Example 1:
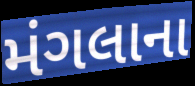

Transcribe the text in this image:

મંગલાના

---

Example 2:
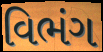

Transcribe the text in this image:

વિભંગ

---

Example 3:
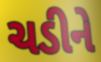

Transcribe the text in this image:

ચડીને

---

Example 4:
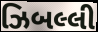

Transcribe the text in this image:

ઝિબલ્લી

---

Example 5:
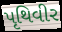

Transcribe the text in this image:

પૃથિવીર